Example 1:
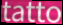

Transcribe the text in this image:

tatto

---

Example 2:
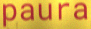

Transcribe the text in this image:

paura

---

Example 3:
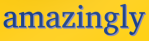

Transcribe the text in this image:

amazingly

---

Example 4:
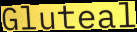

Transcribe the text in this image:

Gluteal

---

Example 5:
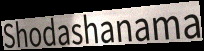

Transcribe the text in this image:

Shodashanama